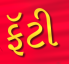
ફૅટી